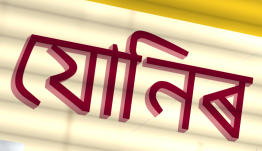
যোনিৰ